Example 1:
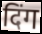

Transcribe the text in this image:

दिंग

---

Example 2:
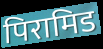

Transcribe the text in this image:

पिरामिड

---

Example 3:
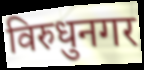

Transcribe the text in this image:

विरुधुनगर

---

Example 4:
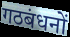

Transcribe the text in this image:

गठबंधनों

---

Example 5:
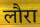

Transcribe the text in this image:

लौरा